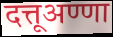
दत्तूअण्णा